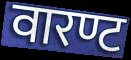
वारण्ट